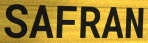
SAFRAN